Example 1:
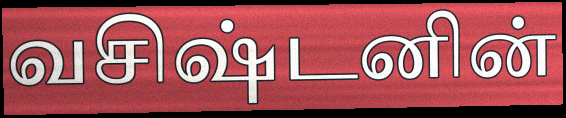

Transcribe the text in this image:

வசிஷ்டனின்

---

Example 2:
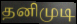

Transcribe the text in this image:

தனிமுடி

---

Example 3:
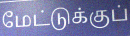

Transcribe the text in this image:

மேட்டுக்குப்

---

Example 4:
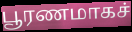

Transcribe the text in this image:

பூரணமாகச்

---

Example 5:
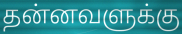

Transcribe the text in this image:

தன்னவளுக்கு